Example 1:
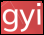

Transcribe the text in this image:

gyi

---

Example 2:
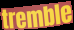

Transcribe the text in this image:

tremble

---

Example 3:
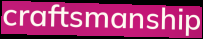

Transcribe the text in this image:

craftsmanship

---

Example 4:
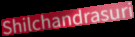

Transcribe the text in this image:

Shilchandrasuri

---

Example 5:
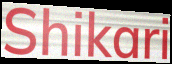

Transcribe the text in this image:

Shikari